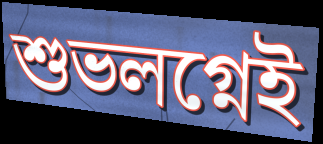
শুভলগ্নেই